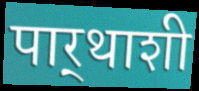
पार्थाशी